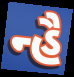
ન્હૈ